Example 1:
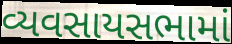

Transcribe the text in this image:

વ્યવસાયસભામાં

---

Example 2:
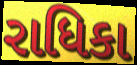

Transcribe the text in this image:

રાધિકા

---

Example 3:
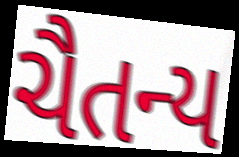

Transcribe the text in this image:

ચૈતન્ય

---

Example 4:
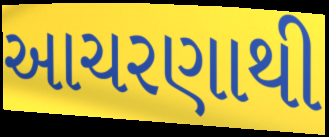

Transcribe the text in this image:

આચરણાથી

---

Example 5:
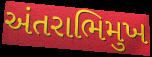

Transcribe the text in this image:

અંતરાભિમુખ